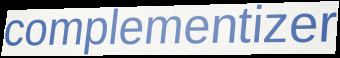
complementizer